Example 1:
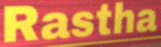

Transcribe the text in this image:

Rastha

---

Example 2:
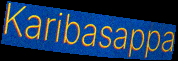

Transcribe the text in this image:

Karibasappa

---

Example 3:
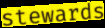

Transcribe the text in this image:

stewards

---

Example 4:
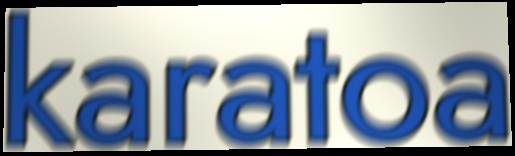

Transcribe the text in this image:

karatoa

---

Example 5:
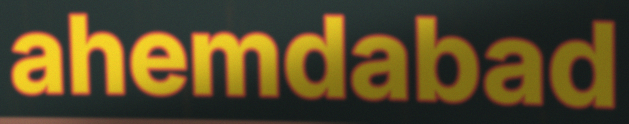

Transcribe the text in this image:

ahemdabad